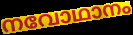
നവോഥാനം